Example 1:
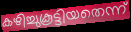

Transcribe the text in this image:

കഴിച്ചുകൂട്ടിയതെന്ന്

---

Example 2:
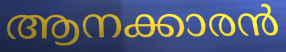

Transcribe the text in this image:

ആനക്കാരൻ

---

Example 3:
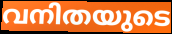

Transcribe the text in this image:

വനിതയുടെ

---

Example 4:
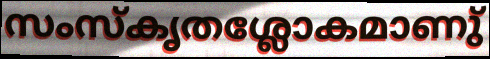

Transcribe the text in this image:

സംസ്കൃതശ്ലോകമാണു്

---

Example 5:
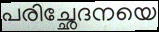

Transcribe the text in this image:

പരിച്ഛേദനയെ